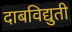
दाबविद्युती